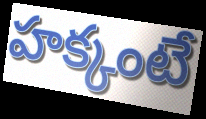
హక్కంటే